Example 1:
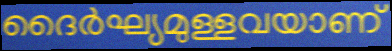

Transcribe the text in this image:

ദൈർഘ്യമുള്ളവയാണ്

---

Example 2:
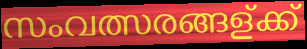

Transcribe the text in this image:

സംവത്സരങ്ങള്ക്ക്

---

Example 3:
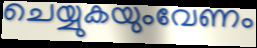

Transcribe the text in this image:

ചെയ്യുകയുംവേണം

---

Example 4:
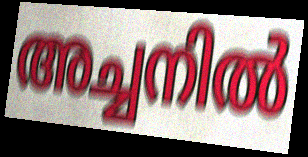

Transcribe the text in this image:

അച്ചനിൽ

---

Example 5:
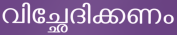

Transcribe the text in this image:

വിച്ഛേദിക്കണം